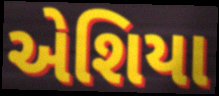
એશિયા